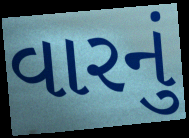
વારનું